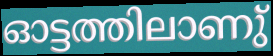
ഓട്ടത്തിലാണു്